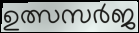
ഉത്സസർജ